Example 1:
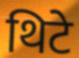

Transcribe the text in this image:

थिटे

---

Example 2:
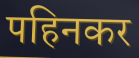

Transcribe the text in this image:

पहिनकर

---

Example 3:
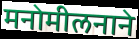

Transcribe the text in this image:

मनोमीलनाने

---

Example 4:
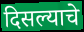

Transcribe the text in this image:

दिसल्याचे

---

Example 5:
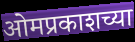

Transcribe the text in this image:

ओमप्रकाशच्या